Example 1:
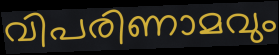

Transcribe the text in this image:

വിപരിണാമവും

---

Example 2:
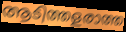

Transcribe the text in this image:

ആടിത്തളരാത്ത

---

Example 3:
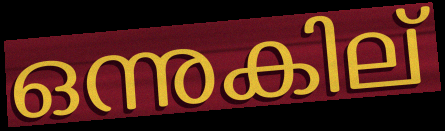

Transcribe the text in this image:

ഒന്നുകില്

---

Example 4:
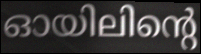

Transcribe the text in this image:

ഓയിലിന്റെ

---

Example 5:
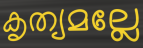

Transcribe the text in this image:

കൃത്യമല്ലേ